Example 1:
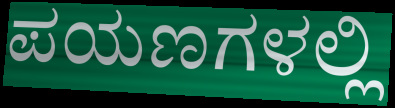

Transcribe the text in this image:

ಪಯಣಗಳಲ್ಲಿ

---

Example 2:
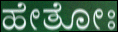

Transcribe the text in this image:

ಹೇತೋಃ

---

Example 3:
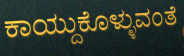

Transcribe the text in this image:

ಕಾಯ್ದುಕೊಳ್ಳುವಂತೆ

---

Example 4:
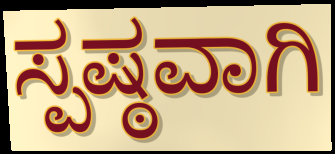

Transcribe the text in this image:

ಸ್ಪಷ್ಠವಾಗಿ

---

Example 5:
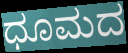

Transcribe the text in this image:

ಧೂಮದ